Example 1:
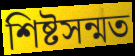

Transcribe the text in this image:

শিষ্টসন্মত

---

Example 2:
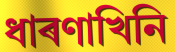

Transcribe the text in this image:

ধাৰণাখিনি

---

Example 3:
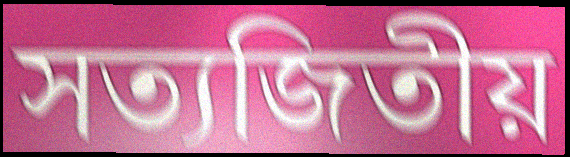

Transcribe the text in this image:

সত্যজিতীয়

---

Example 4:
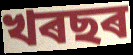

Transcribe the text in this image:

খৰছৰ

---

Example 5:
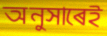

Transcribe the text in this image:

অনুসাৰেই